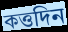
কত্তদিন